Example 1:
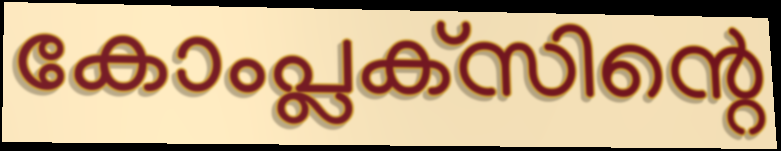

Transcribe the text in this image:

കോംപ്ലക്‌സിന്റെ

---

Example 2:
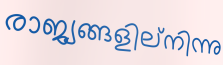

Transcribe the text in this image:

രാജ്യങ്ങളില്നിന്നു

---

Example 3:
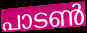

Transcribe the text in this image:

പാടൺ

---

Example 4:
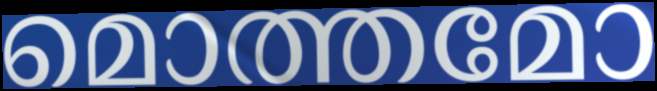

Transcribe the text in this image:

മൊത്തമോ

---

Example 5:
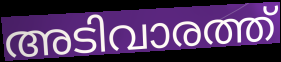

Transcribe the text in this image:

അടിവാരത്ത്